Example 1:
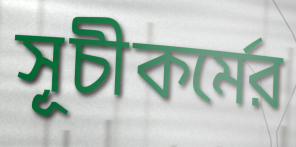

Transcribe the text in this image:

সূচীকর্মের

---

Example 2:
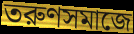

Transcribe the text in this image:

তরুণসমাজে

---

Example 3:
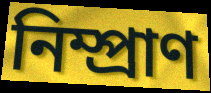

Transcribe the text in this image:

নিম্প্রাণ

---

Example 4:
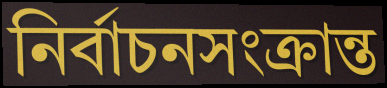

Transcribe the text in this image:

নির্বাচনসংক্রান্ত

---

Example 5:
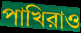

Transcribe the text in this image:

পাখিরাও